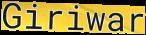
Giriwar